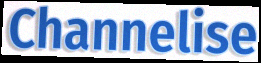
Channelise